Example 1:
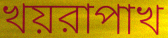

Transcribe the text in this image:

খয়রাপাখ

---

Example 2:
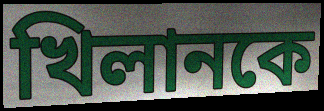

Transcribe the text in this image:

খিলানকে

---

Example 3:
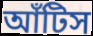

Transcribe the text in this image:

আঁটিস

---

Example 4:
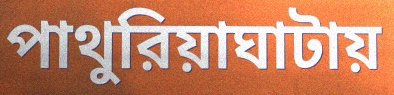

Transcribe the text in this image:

পাথুরিয়াঘাটায়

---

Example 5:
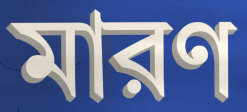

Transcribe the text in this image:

মারণ